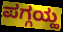
ಪಗ್ಗಯ್ಹ